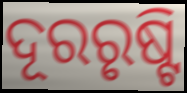
ଦୂରରୃଷ୍ଟି